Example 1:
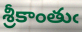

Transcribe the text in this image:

శ్రీకాంతుఁ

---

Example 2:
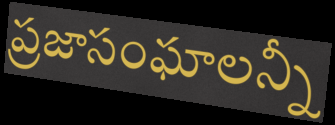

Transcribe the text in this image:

ప్రజాసంఘాలన్నీ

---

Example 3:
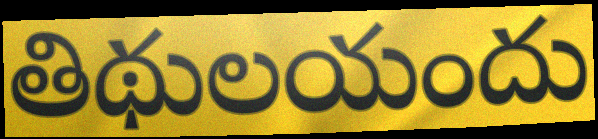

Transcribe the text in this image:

తిథులయందు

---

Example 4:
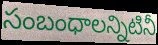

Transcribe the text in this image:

సంబంధాలన్నిటినీ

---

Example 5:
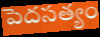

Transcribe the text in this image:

పెదసత్యం